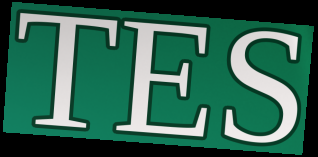
TES